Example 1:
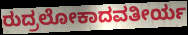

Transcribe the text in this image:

ರುದ್ರಲೋಕಾದವತೀರ್ಯ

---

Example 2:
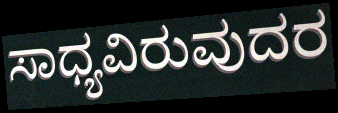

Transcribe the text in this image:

ಸಾಧ್ಯವಿರುವುದರ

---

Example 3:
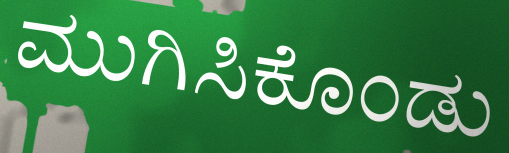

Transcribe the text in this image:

ಮುಗಿಸಿಕೊಂಡು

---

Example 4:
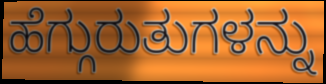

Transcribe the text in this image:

ಹೆಗ್ಗುರುತುಗಳನ್ನು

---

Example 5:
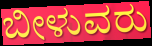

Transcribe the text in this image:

ಬೀಳುವರು